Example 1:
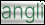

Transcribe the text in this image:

angli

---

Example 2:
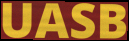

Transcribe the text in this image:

UASB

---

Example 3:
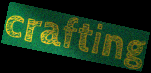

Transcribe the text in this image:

crafting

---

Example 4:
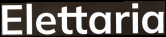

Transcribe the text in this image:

Elettaria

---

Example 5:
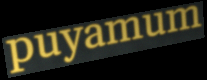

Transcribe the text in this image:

puyamum